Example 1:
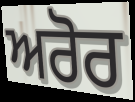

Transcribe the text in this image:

ਅਰੋਰ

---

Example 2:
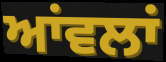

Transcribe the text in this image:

ਆਂਵਲਾਂ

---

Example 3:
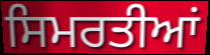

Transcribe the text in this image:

ਸਿਮਰਤੀਆਂ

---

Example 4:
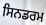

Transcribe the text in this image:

ਸਿਨਡਰਮ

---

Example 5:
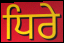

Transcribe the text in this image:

ਧਿਰੇ